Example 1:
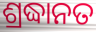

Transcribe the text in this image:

ଶ୍ରଦ୍ଧାନତ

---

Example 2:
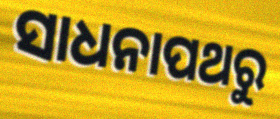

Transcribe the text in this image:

ସାଧନାପଥରୁ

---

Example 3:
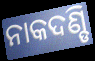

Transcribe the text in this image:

ନାକଦଣ୍ଡି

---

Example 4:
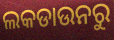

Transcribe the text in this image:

ଲକଡାଉନରୁ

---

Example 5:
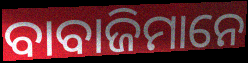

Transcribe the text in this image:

ବାବାଜିମାନେ